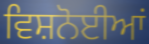
ਵਿਸ਼ਨੋਈਆਂ